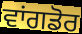
ਵਾਂਗਡੋਰ